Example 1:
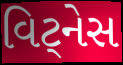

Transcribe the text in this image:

વિટ્નેસ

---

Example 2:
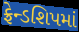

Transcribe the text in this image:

ફ્રેન્ડશિપમાં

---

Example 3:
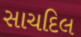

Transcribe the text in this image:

સાચદિલ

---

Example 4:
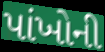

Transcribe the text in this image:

પાંખોની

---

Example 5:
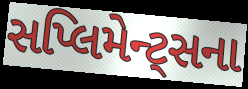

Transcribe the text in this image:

સપ્લિમેન્ટ્સના